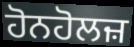
ਹੋਨਹੋਲਜ਼